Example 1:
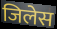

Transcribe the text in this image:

जिलेस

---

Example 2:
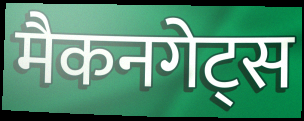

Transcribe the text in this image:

मैकनगेट्स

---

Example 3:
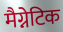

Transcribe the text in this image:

मैग्नेटिक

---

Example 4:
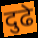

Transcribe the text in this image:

दुढे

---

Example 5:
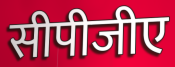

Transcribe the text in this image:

सीपीजीए